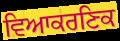
ਵਿਆਕਰਣਿਕ